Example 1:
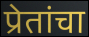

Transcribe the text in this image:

प्रेतांचा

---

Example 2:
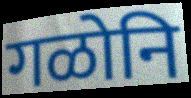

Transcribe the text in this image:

गळोनि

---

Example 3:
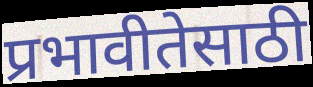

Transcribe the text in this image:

प्रभावीतेसाठी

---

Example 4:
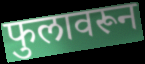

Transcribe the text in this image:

फुलावरून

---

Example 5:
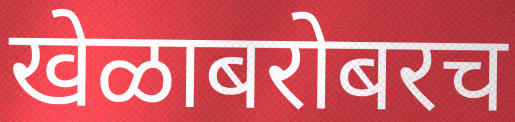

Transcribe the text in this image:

खेळाबरोबरच